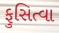
ફુસિત્વા